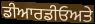
ਡੀਆਰਡੀਓਅਤੇ